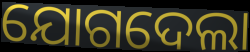
ଯୋଗଦେଲା